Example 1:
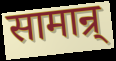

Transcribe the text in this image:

सामान्र्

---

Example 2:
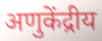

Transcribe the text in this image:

अणुकेंद्रीय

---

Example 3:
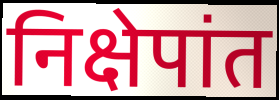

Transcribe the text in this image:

निक्षेपांत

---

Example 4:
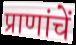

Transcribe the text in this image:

प्राणांचें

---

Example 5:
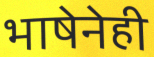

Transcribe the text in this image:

भाषेनेही